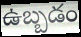
ఉబ్బడం